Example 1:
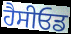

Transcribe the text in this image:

ਹੈਸੀਓਡ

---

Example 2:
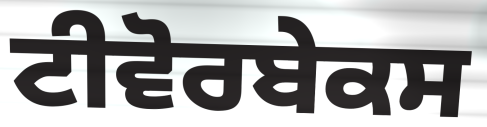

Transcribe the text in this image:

ਟੀਵੋਰਬੇਕਸ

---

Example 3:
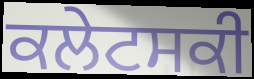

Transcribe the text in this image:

ਕਲੇਟਸਕੀ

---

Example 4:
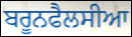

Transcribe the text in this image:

ਬਰੂਨਫੈਲਸੀਆ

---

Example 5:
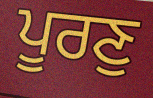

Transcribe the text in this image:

ਪੂਰਣੁ